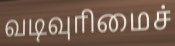
வடிவுரிமைச்